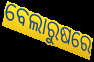
ବେଲାରୁଷରେ